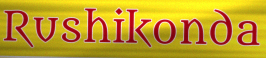
Rushikonda